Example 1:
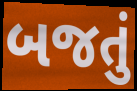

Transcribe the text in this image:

બજતું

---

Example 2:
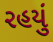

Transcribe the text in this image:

રહયું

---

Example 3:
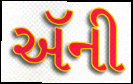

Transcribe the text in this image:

ઍની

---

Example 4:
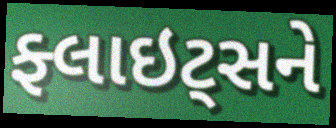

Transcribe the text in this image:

ફ્લાઇટ્સને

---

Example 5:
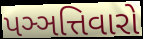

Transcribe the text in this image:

પઞ્ઞત્તિવારો